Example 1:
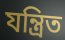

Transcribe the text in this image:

যন্ত্রিত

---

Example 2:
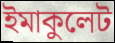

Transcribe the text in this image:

ইমাকুলেট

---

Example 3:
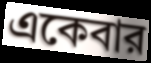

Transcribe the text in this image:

একেবার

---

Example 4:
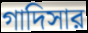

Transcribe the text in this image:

গাদিসার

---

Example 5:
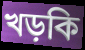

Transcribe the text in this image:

খড়কি